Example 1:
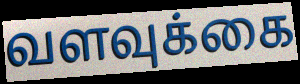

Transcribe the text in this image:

வளவுக்கை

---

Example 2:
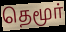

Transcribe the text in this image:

தெமூர்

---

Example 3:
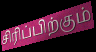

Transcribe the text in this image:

சிரிப்பிற்கும்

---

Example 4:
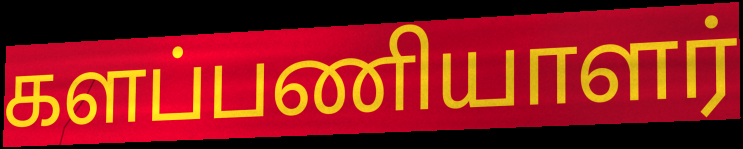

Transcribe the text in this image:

களப்பணியாளர்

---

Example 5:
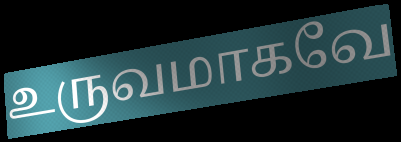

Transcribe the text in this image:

உருவமாகவே